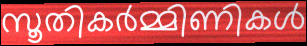
സൂതികർമ്മിണികൾ